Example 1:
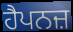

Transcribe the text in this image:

ਹੈਪਨਜ਼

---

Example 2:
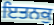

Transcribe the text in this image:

ਇਤਨਕੁ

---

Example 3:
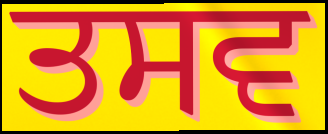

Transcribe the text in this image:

ਤਸਵ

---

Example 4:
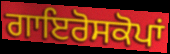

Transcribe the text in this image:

ਗਾਇਰੋਸਕੋਪਾਂ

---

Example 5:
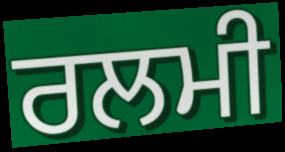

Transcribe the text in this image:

ਰਲਮੀ